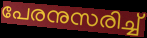
പേരനുസരിച്ച്